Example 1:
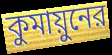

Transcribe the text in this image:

কুমায়ুনের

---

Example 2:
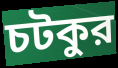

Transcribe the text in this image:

চটকুর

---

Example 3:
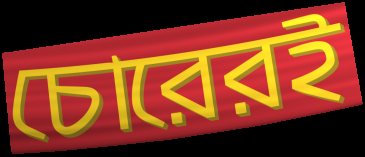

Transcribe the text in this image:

চোরেরই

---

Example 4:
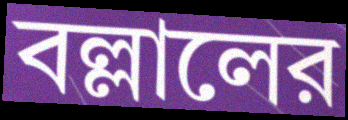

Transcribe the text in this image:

বল্লালের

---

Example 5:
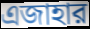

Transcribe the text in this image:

এজাহার